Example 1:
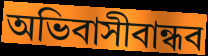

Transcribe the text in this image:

অভিবাসীবান্ধব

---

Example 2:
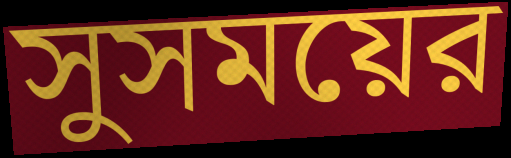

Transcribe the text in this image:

সুসময়ের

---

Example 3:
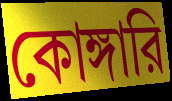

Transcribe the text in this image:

কোঙ্গারি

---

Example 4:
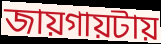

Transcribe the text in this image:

জায়গায়টায়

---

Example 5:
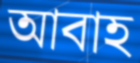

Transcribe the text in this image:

আবাহ